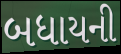
બધાયની